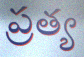
ప్రత్య